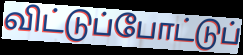
விட்டுப்போட்டுப்